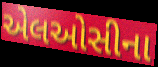
એલઓસીના